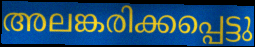
അലങ്കരിക്കപ്പെട്ടു